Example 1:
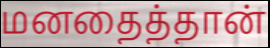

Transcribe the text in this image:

மனதைத்தான்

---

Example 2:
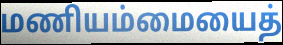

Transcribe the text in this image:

மணியம்மையைத்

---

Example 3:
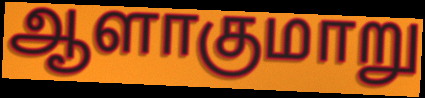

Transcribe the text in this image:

ஆளாகுமாறு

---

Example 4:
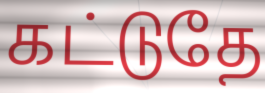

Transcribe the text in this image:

கட்டுதே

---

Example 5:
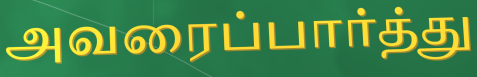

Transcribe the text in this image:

அவரைப்பார்த்து